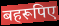
बहरूपिए